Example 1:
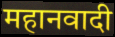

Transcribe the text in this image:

महानवादी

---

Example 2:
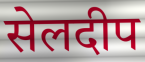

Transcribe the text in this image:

सेलदीप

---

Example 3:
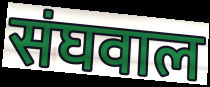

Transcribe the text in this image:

संघवाल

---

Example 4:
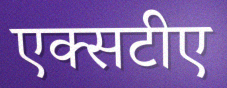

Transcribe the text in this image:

एक्सटीए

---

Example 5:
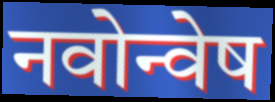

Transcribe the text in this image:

नवोन्वेष